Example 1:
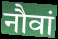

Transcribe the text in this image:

नौवां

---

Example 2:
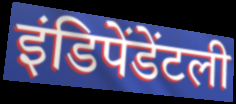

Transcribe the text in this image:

इंडिपेंडेंटली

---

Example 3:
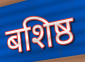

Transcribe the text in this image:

बशिष्ठ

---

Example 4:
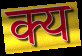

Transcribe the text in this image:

क्य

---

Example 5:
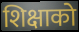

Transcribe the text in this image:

शिक्षाको